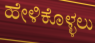
ಹೇಳಿಕೊಳ್ಳಲು